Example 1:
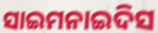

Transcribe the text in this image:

ସାଇମନାଇଦିସ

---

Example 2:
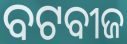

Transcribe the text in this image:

ବଟବୀଜ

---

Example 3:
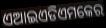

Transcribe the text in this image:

ଏଆଇଏଡିଏମକେର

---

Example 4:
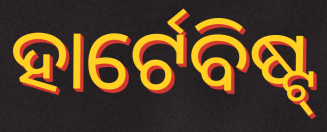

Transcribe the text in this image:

ହାର୍ଟେବିଷ୍ଟ୍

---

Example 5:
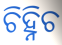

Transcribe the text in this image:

ଚିହ୍ନିଚ